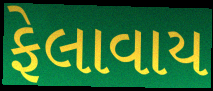
ફેલાવાય